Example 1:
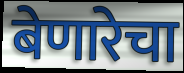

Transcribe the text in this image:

बेणारेचा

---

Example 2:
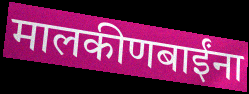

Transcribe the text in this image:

मालकीणबाईंना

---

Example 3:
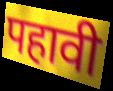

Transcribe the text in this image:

पहावी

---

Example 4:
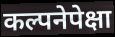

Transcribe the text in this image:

कल्पनेपेक्षा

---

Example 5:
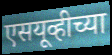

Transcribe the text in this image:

एसयूव्हीच्या